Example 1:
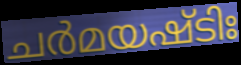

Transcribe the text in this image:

ചർമയഷ്ടിഃ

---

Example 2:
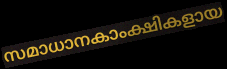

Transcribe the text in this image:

സമാധാനകാംക്ഷികളായ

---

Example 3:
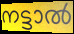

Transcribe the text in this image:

നട്ടാൽ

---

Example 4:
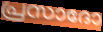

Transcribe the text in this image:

പ്രസാദോ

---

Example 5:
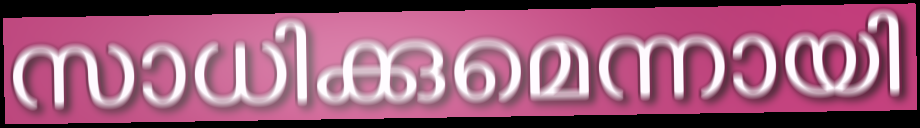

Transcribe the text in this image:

സാധിക്കുമെന്നായി